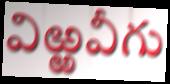
విఱ్ఱవీగు